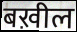
बख़ील